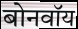
बोनवॉय